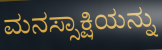
ಮನಸ್ಸಾಕ್ಷಿಯನ್ನು